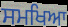
ਸਮਖਿਆ